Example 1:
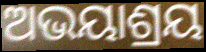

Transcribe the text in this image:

ଅଭୟାଶ୍ରୟ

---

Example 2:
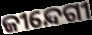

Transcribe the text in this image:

ଜୀନ୍ଦେଗୀ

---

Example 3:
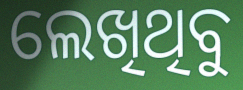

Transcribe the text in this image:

ଲେଖିଥିବୁ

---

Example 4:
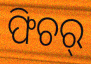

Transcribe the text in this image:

ଫିଚର୍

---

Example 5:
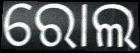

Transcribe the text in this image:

ରୋଲ